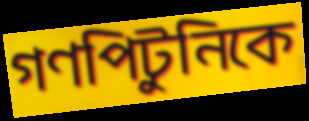
গণপিটুনিকে